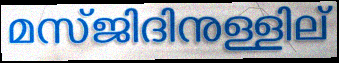
മസ്ജിദിനുള്ളില്